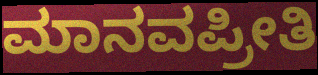
ಮಾನವಪ್ರೀತಿ